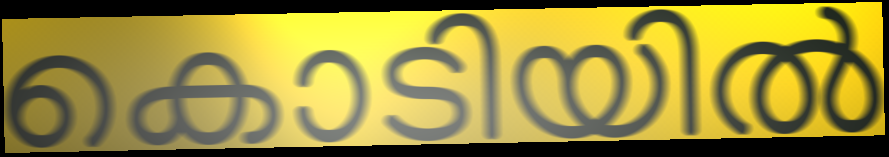
കൊടിയിൽ